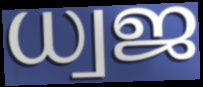
ധ്വജ